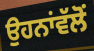
ਉਹਨਾਂਵੱਲੋਂ